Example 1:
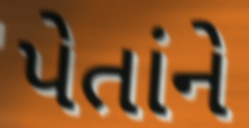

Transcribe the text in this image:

પેતાંને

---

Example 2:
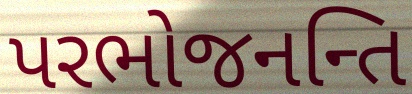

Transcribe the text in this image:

પરભોજનન્તિ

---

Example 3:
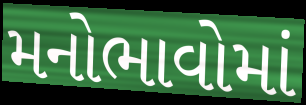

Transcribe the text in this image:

મનોભાવોમાં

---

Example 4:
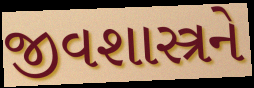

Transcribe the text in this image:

જીવશાસ્ત્રને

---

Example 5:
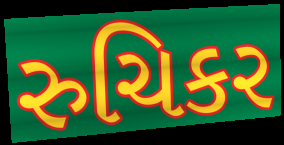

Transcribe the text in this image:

રુચિકર